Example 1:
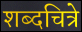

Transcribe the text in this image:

शब्दचित्रे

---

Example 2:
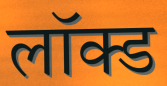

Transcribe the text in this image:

लॉक्ड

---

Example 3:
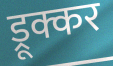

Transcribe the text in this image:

ड्रूक्कर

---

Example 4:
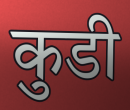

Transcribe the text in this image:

कुडी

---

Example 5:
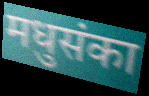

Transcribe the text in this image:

मधुसंका